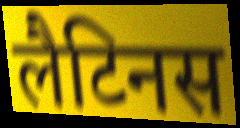
लैटिनस